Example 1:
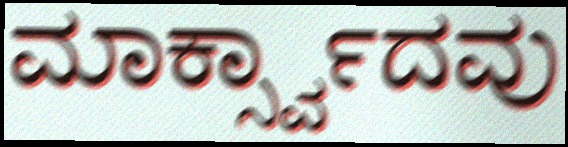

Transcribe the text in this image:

ಮಾರ್ಕ್ಸ್ವಾದವು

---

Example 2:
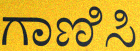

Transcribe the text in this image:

ಗಾಣಿಸಿ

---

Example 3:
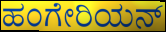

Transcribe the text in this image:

ಹಂಗೇರಿಯನ್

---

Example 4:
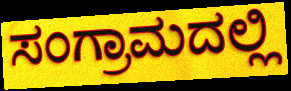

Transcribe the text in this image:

ಸಂಗ್ರಾಮದಲ್ಲಿ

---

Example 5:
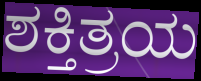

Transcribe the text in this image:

ಶಕ್ತಿತ್ರಯ